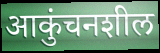
आकुंचनशील